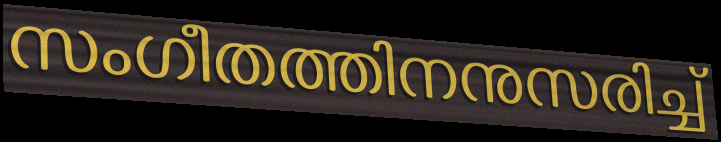
സംഗീതത്തിനനുസരിച്ച്